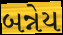
બન્નેય